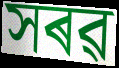
সৰৱ